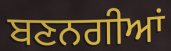
ਬਣਨਗੀਆਂ